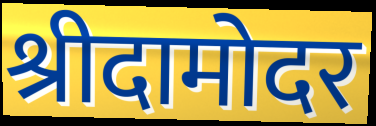
श्रीदामोदर